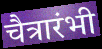
चैत्रारंभी